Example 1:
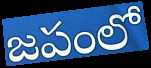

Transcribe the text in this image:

జపంలో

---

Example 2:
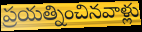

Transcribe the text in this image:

ప్రయత్నించినవాళ్లు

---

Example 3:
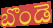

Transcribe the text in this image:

బొండె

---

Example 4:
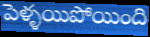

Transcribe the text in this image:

పెళ్ళయిపోయింది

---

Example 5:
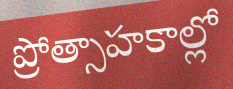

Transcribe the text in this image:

ప్రోత్సాహకాల్లో